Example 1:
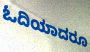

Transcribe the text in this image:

ಓದಿಯಾದರೂ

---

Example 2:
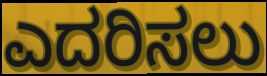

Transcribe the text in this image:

ಎದರಿಸಲು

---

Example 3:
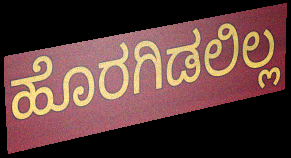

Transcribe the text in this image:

ಹೊರಗಿಡಲಿಲ್ಲ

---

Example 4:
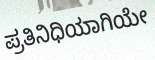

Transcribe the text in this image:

ಪ್ರತಿನಿಧಿಯಾಗಿಯೇ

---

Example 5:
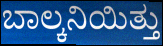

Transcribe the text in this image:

ಬಾಲ್ಕನಿಯಿತ್ತು